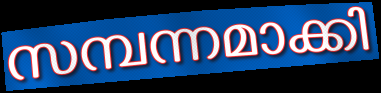
സമ്പന്നമാക്കി